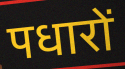
पधारों